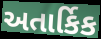
અતાર્કિક